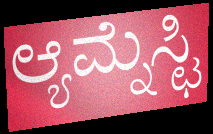
ಆ್ಯಮ್ನೆಸ್ಟಿ